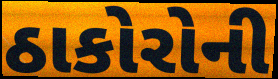
ઠાકોરોની